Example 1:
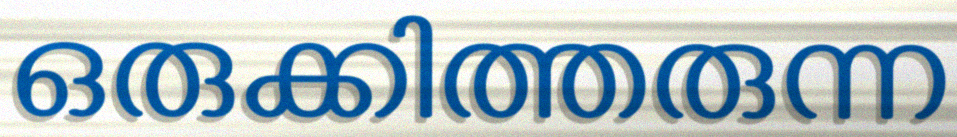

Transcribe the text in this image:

ഒരുക്കിത്തരുന്ന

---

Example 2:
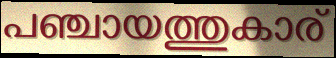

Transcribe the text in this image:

പഞ്ചായത്തുകാര്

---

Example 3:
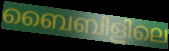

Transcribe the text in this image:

ബൈബിളിലെ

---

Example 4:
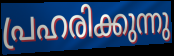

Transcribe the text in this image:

പ്രഹരിക്കുന്നു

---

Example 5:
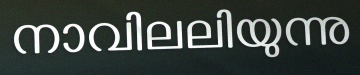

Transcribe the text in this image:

നാവിലലിയുന്നു